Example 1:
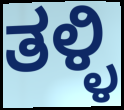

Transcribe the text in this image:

ತಳ್ಳಿ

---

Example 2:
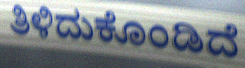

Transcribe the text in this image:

ತಿಳಿದುಕೊಂಡಿದೆ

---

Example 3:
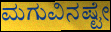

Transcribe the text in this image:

ಮಗುವಿನಷ್ಟೇ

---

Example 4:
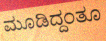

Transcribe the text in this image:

ಮೂಡಿದ್ದಂತೂ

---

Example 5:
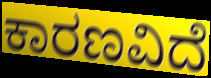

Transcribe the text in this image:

ಕಾರಣವಿದೆ